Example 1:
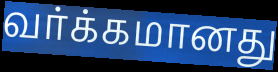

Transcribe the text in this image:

வர்க்கமானது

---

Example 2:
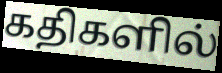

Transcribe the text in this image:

கதிகளில்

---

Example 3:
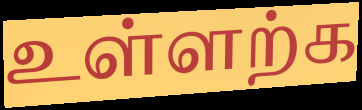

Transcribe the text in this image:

உள்ளற்க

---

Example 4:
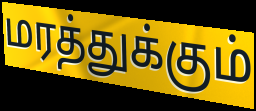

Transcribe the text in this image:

மரத்துக்கும்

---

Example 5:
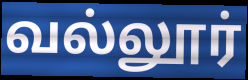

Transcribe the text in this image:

வல்லூர்